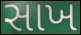
સાખ